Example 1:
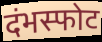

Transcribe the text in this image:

दंभस्फोट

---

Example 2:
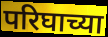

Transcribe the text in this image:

परिघाच्या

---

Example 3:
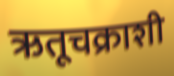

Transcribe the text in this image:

ऋतूचक्राशी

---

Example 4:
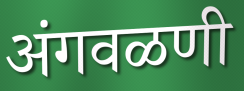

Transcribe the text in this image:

अंगवळणी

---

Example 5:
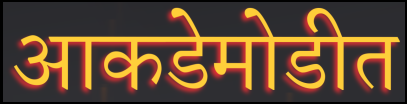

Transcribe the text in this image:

आकडेमोडीत